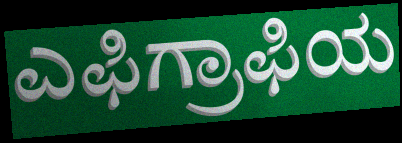
ಎಫಿಗ್ರಾಫಿಯ